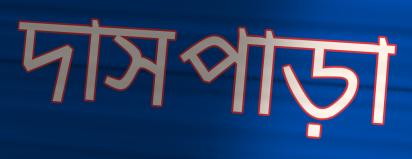
দাসপাড়া